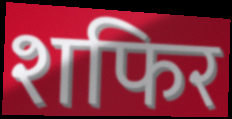
शफिर